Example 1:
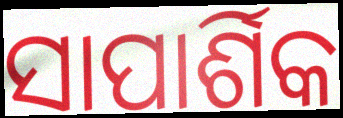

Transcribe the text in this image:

ସାପାର୍ଶିକ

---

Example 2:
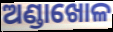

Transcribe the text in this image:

ଅଣ୍ଡାଖୋଳ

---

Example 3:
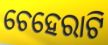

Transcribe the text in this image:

ଚେହେରାଟି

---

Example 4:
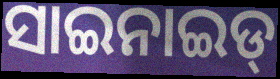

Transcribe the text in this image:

ସାଇନାଇଡ୍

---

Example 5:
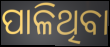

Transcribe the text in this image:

ପାଳିଥିବା